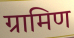
ग्रामिण